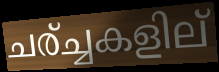
ചര്ച്ചകളില്